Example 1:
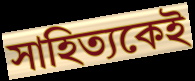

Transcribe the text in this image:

সাহিত্য়কেই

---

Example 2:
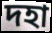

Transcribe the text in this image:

দহা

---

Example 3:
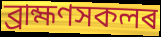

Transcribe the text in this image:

ব্ৰাহ্মণসকলৰ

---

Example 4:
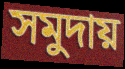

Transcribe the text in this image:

সমুদায়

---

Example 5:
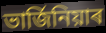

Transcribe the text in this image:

ভাৰ্জিনিয়াৰ